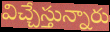
విచ్చేస్తున్నారు